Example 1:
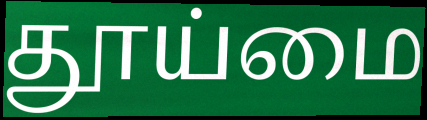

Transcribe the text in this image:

தூய்மை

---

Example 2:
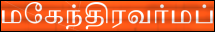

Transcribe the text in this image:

மகேந்திரவர்மப்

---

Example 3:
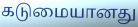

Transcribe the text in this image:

கடுமையானது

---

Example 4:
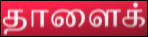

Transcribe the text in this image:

தாளைக்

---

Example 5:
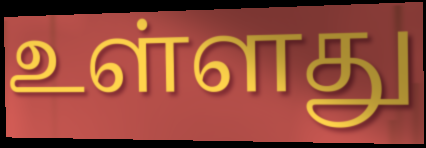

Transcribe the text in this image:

உள்ளது